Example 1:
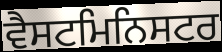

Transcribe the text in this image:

ਵੈਸਟਮਿਨਿਸਟਰ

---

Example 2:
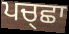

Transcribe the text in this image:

ਪਚ੍ਛਾ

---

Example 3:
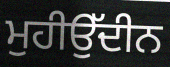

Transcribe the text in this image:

ਮੁਹੀਉੱਦੀਨ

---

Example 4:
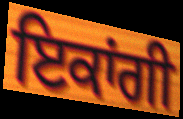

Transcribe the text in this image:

ਇਕਾਂਗੀ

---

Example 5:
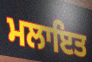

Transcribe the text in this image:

ਮਲਾਇਤ